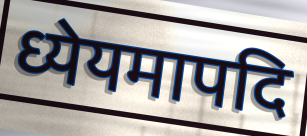
ध्येयमापदि